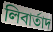
লিবার্তাদ